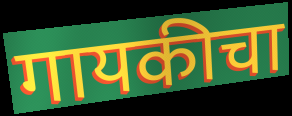
गायकीचा